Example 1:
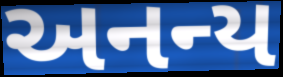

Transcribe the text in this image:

અનન્ય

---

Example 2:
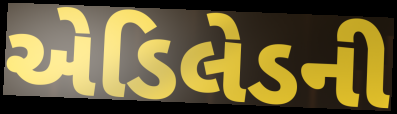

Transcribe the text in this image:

એડિલેડની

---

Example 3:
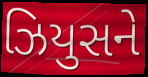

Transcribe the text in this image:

ઝિયુસને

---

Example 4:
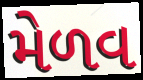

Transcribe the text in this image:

મેળવ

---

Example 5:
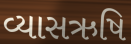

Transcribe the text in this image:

વ્યાસઋષિ